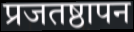
प्रजतष्ठापन